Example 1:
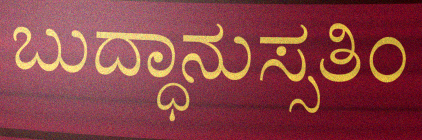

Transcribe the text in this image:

ಬುದ್ಧಾನುಸ್ಸತಿಂ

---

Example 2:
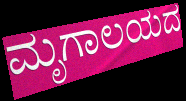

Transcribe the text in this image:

ಮೃಗಾಲಯದ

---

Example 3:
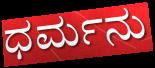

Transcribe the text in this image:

ಧರ್ಮನು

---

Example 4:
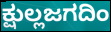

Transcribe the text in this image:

ಕ್ಷುಲ್ಲಜಗದಿಂ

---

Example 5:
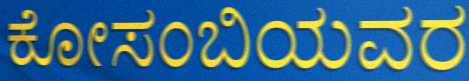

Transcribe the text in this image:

ಕೋಸಂಬಿಯವರ